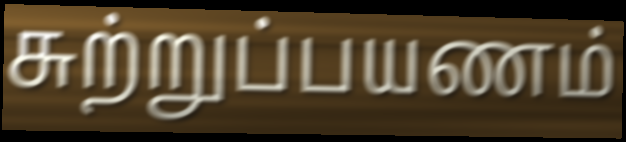
சுற்றுப்பயணம்